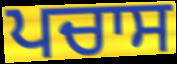
ਪਚਾਸ